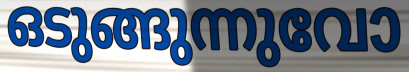
ഒടുങ്ങുന്നുവോ